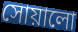
সোয়ালো